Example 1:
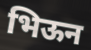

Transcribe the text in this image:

भिऊन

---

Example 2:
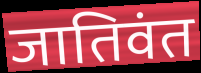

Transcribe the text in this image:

जातिवंत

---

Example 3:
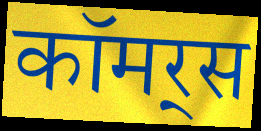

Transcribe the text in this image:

कॉमर्स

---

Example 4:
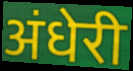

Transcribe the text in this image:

अंधेरी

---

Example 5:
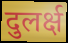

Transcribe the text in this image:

दुलर्क्ष